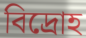
বিদ্রোহ